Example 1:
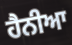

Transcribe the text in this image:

ਹੈਨੀਆ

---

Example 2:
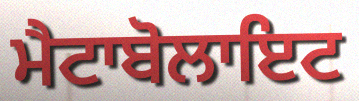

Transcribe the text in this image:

ਮੈਟਾਬੋਲਾਇਟ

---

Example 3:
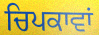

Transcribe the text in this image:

ਚਿਪਕਾਵਾਂ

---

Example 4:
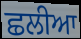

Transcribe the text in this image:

ਛਲੀਆ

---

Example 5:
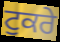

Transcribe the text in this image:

ਟੁਕਰੇ